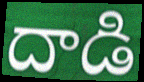
దాడి